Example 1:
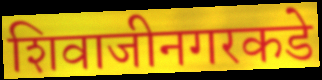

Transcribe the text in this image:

शिवाजीनगरकडे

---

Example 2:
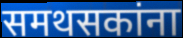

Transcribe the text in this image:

समथसकांना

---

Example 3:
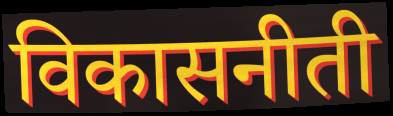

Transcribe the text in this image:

विकासनीती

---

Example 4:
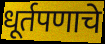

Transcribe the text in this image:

धूर्तपणाचे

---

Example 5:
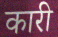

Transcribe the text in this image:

कारी